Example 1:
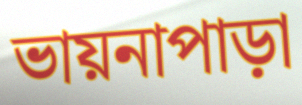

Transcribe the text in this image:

ভায়নাপাড়া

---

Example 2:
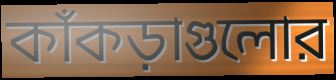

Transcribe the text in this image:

কাঁকড়াগুলোর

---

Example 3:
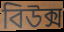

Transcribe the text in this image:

বিউক্স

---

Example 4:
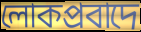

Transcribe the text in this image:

লোকপ্রবাদে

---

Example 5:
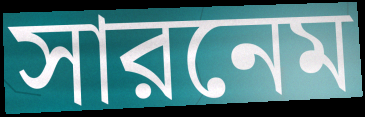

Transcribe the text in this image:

সারনেম